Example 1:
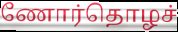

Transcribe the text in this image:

ணோர்தொழச்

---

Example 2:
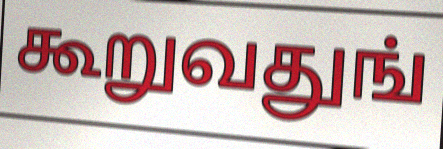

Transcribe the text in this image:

கூறுவதுங்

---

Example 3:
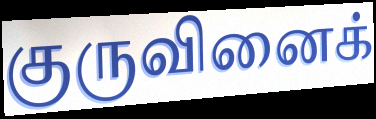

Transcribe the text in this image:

குருவினைக்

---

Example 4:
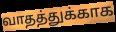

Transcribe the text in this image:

வாதத்துக்காக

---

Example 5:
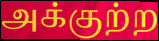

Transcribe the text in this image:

அக்குற்ற